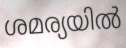
ശമര്യയിൽ